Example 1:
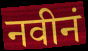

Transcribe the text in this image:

नवीनं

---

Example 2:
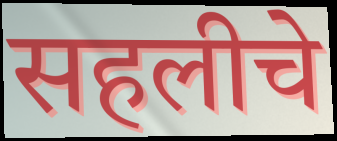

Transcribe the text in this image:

सहलीचे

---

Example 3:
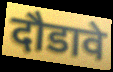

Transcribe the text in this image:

दौडावे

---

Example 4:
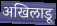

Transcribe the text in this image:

अखिलाडू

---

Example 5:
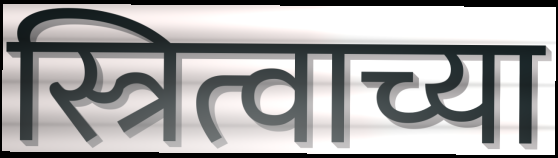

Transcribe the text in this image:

स्त्रित्वाच्या